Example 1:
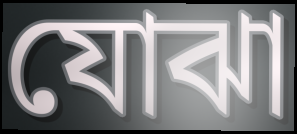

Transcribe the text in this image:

যোঝা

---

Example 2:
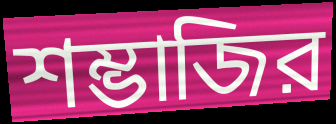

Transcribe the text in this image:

শম্ভাজির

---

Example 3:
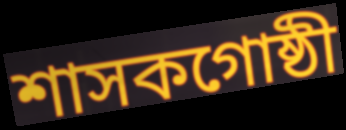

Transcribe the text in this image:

শাসকগোষ্ঠী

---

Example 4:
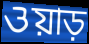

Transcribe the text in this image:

ওয়াড়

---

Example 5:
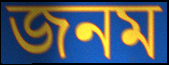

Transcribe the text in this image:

জনম